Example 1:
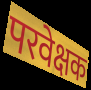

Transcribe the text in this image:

परवेक्षक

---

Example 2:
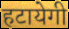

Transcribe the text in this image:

हटायेगी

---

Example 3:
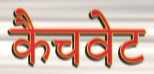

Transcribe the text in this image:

कैचवेट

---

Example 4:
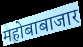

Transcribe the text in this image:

महोबाबाजार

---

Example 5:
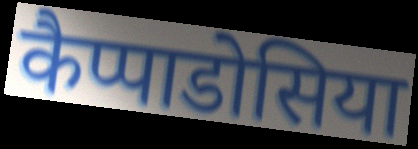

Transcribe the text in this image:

कैप्पाडोसिया